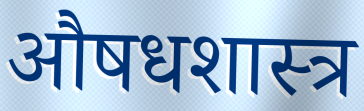
औषधशास्त्र